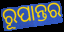
ରୂପାନ୍ତର